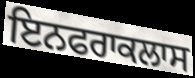
ਇਨਫਰਾਕਲਾਸ